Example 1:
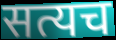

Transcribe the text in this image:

सत्यच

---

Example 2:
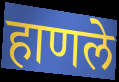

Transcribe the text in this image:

हाणले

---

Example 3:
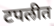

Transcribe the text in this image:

टपलीत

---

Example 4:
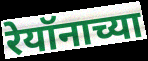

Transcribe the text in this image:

रेयॉनाच्या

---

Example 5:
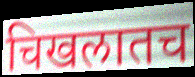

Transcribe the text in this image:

चिखलातच